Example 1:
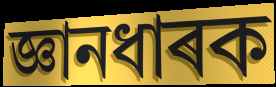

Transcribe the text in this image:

জ্ঞানধাৰক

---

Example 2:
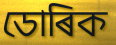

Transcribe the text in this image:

ডোৰিক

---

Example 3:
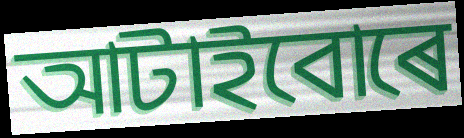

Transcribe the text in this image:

আটাইবোৰে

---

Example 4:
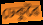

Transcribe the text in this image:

ঢেকুৱৈ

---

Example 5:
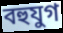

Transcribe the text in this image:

বহুযুগ